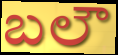
బలౌ